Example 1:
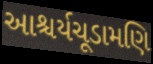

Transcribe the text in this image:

આશ્ચર્યચૂડામણિ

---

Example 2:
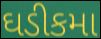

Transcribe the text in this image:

ઘડીકમા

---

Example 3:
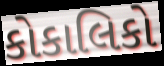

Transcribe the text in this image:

કોકાલિકો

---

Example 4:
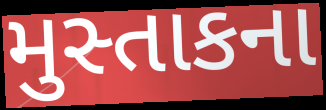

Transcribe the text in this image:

મુસ્તાકના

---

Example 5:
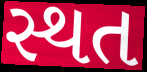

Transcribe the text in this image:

સ્થત